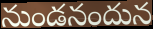
నుండనందున